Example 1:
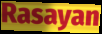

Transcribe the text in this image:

Rasayan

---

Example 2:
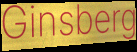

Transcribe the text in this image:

Ginsberg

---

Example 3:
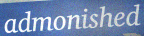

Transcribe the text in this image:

admonished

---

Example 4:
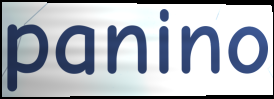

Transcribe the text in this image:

panino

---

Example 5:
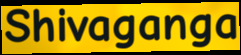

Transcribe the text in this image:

Shivaganga